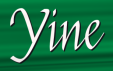
Yine